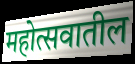
महोत्सवातील